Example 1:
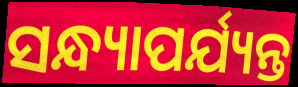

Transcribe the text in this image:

ସନ୍ଧ୍ୟାପର୍ଯ୍ୟନ୍ତ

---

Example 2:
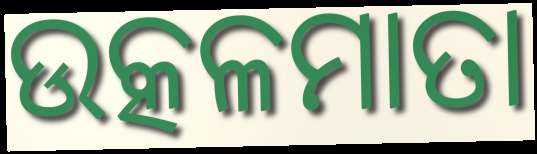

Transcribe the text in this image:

ଉତ୍କଳମାତା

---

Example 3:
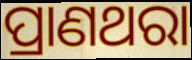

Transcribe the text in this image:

ପ୍ରାଣଥରା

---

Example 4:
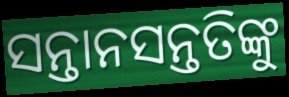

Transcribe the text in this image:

ସନ୍ତାନସନ୍ତତିଙ୍କୁ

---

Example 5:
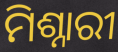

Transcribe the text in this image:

ମିଶ୍ନାରୀ